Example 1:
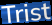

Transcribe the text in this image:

Trist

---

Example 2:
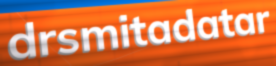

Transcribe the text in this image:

drsmitadatar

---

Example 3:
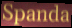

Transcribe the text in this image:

Spanda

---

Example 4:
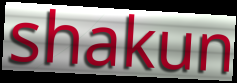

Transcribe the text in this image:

shakun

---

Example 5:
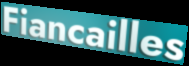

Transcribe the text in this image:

Fiancailles